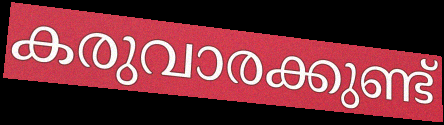
കരുവാരക്കുണ്ട്